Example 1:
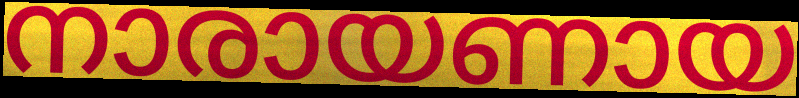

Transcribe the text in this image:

നാരായണായ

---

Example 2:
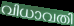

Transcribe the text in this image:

വിധാവതി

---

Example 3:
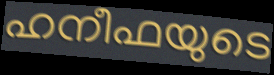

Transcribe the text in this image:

ഹനീഫയുടെ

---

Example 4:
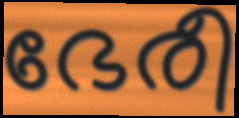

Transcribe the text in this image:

ഭേരീ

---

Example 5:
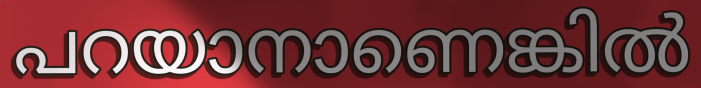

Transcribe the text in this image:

പറയാനാണെങ്കിൽ